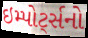
ઇમ્પોર્ટ્સનો